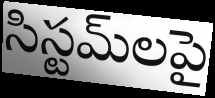
సిస్టమ్‌లపై